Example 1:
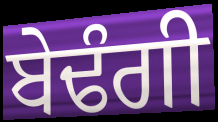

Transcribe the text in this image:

ਬੇਢੰਗੀ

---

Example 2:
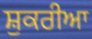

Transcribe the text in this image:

ਸ਼ੁਕਰੀਆ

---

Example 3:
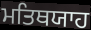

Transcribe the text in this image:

ਮਤਿਥਯਾਹ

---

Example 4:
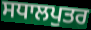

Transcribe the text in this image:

ਸਧਾਲਪੁਤਰ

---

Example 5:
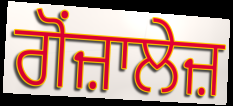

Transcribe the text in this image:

ਗੋਂਜ਼ਾਲੇਜ਼